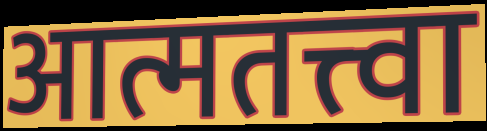
आत्मतत्त्वा